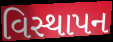
વિસ્થાપન